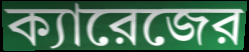
ক্যারেজের